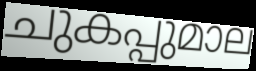
ചുകപ്പുമാല